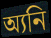
অ্যনি